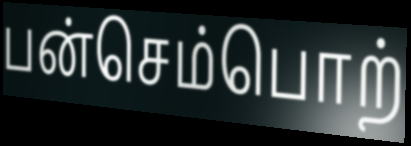
பன்செம்பொற்